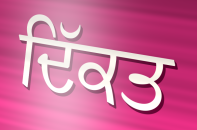
ਦਿੱਕਤ